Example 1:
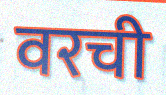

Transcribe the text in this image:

वरची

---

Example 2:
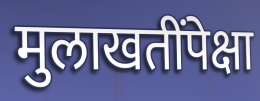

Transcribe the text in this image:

मुलाखतींपेक्षा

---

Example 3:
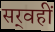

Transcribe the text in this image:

सर्वहीं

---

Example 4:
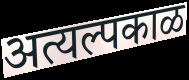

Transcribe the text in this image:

अत्यल्पकाळ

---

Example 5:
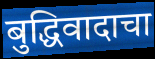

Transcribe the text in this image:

बुद्धिवादाचा